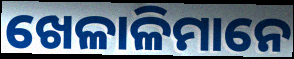
ଖେଳାଳିମାନେ